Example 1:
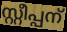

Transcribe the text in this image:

സ്റ്റീപ്പന്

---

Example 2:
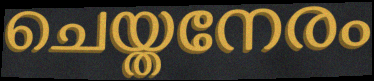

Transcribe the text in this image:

ചെയ്തനേരം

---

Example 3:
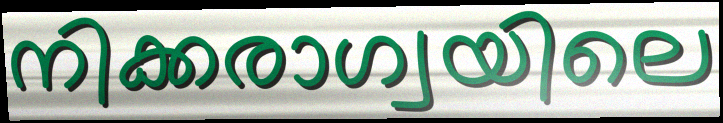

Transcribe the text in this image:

നിക്കരാഗ്വയിലെ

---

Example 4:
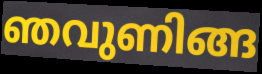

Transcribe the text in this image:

ഞവുണിങ്ങ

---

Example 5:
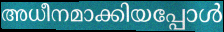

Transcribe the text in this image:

അധീനമാക്കിയപ്പോൾ